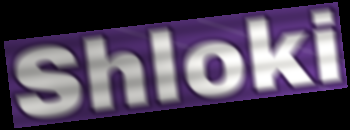
Shloki